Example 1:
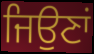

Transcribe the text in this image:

ਜਿਉਣਾਂ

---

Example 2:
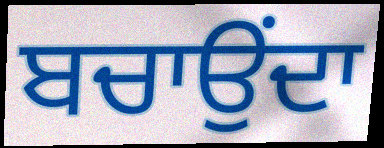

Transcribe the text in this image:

ਬਚਾਉਂਦਾ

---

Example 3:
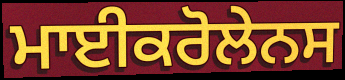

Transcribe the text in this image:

ਮਾਈਕਰੋਲੇਨਸ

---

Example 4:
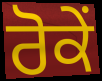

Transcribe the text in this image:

ਰੋਕੇਂ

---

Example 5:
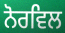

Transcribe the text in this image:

ਨੋਰਵਿਲ